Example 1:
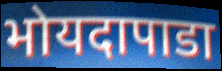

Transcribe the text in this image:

भोयदापाडा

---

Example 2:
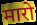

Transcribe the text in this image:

मारो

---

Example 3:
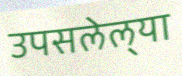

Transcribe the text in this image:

उपसलेल्या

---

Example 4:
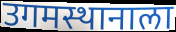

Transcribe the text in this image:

उगमस्थानाला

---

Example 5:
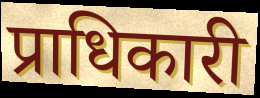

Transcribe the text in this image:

प्राधिकारी